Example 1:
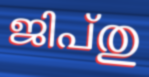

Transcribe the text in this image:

ജിപ്തു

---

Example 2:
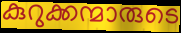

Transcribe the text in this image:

കുറുക്കന്മാരുടെ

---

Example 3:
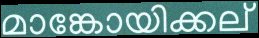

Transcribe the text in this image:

മാങ്കോയിക്കല്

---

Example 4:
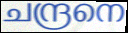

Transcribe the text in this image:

ചന്ദ്രനെ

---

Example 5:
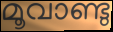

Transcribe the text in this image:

മൂവാണ്ടു